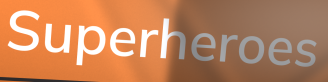
Superheroes